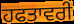
ਹਫਤਾਵਰੀ